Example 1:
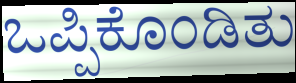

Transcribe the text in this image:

ಒಪ್ಪಿಕೊಂಡಿತು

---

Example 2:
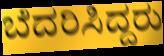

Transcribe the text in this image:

ಬೆದರಿಸಿದ್ದರು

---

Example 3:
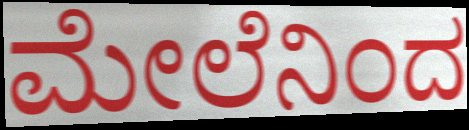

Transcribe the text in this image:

ಮೇಲೆನಿಂದ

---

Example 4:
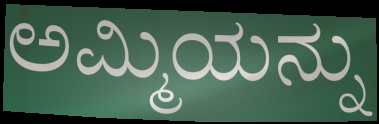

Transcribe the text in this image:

ಅಮ್ಮಿಯನ್ನು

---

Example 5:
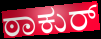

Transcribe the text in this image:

ಠಾಕುರ್